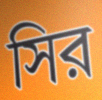
সির